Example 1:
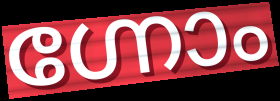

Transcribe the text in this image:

ഗ്നോം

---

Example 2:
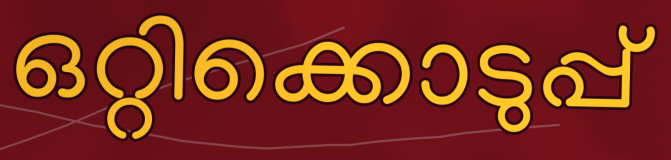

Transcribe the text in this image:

ഒറ്റിക്കൊടുപ്പ്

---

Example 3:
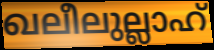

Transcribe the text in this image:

ഖലീലുല്ലാഹ്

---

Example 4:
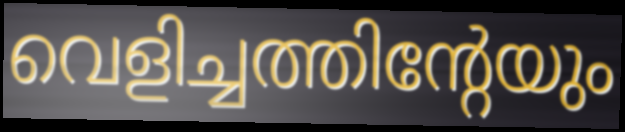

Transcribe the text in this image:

വെളിച്ചത്തിന്റേയും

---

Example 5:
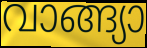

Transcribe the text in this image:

വാങ്ങ്യാ